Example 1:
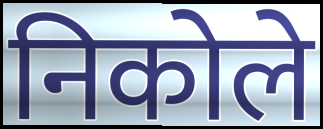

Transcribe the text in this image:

निकोले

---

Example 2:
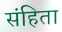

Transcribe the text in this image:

संहिता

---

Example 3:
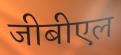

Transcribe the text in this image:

जीबीएल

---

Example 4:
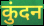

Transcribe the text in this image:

कुंदन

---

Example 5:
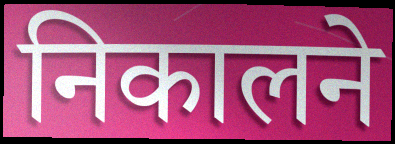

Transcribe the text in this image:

निकालने